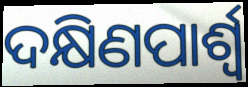
ଦକ୍ଷିଣପାର୍ଶ୍ବ